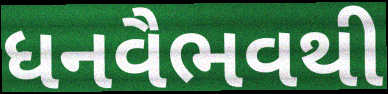
ધનવૈભવથી